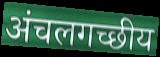
अंचलगच्छीय